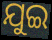
ଯୁଇ